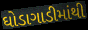
ઘોડાગાડીમાંથી